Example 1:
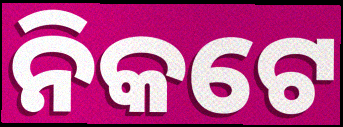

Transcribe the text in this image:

ନିକଟେ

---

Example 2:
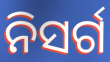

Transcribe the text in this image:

ନିସର୍ଗ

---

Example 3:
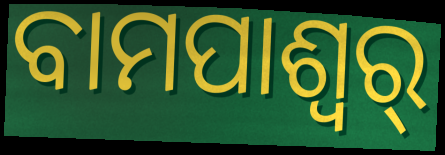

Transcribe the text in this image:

ବାମପାଶ୍ୱର୍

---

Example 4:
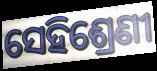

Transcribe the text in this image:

ସେହିଶ୍ରେଣୀ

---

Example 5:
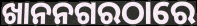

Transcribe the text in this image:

ଖାନନଗରଠାରେ